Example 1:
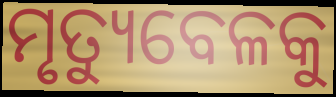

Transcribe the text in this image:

ମୃତ୍ୟୁବେଳକୁ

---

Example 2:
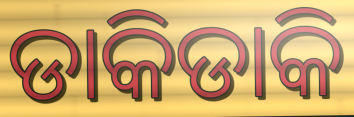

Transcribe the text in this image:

ଡାକିଡାକି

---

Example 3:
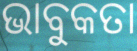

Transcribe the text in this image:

ଭାବୁକତା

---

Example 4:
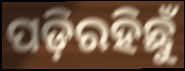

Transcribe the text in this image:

ପଡ଼ିରହିଛୁଁ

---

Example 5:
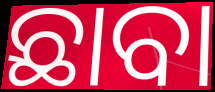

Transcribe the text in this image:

ଛାବା